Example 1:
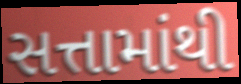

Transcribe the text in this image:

સત્તામાંથી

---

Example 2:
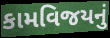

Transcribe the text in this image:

કામવિજયનું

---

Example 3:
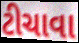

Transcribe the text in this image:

ટીચાવા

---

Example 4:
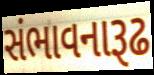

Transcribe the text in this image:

સંભાવનારૂઢ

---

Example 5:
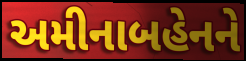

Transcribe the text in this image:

અમીનાબહેનને